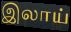
இலாய்